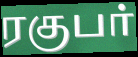
ரகுபர்